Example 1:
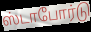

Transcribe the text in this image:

ஸ்டாபோர்டு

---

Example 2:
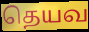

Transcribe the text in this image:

தெயவ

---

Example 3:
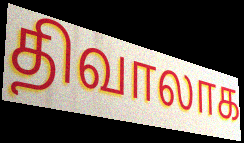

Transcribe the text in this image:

திவாலாக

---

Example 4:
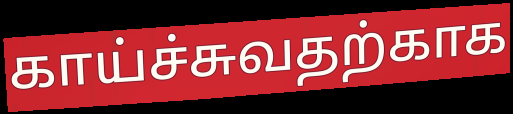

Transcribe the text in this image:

காய்ச்சுவதற்காக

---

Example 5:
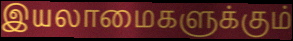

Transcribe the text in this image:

இயலாமைகளுக்கும்